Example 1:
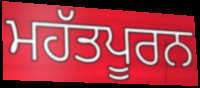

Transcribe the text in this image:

ਮਹੱਤਪੂਰਨ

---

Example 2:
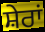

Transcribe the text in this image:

ਸ਼ੇਰਾਂ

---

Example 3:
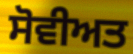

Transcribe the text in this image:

ਸੋਵੀਅਤ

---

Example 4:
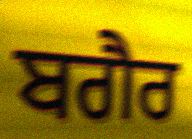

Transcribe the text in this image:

ਬਗੈਰ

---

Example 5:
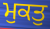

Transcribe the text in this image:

ਮੁਕਤੁ